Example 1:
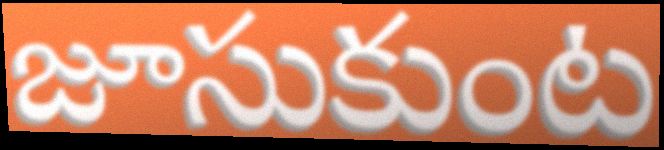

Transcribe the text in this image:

జూసుకుంట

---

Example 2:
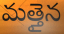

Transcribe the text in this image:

మత్తైన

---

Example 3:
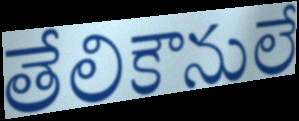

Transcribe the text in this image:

తేలికౌనులే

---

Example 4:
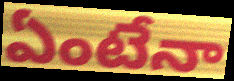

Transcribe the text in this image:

ఏంటేనా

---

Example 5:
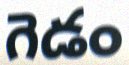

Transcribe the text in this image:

గెడం